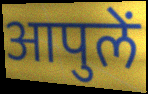
आपुलें